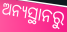
ଅନ୍ୟସ୍ଥାନରୁ